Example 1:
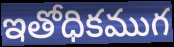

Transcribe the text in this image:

ఇతోధికముగ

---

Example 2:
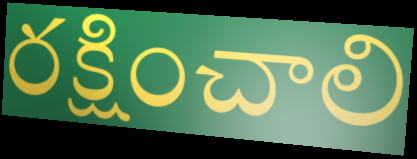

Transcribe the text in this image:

రక్షించాలి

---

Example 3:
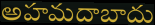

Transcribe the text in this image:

అహమదాబాదు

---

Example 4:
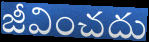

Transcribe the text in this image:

జీవించదు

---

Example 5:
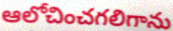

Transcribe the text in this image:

ఆలోచించగలిగాను